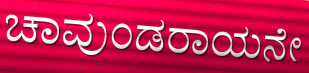
ಚಾವುಂಡರಾಯನೇ